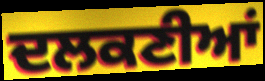
ਦਲਕਣੀਆਂ